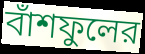
বাঁশফুলের